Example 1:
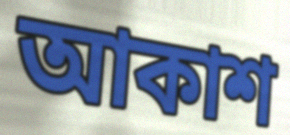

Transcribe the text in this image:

আকাশ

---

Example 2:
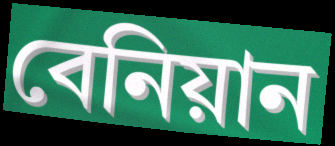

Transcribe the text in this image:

বেনিয়ান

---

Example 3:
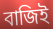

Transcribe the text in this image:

বাজিই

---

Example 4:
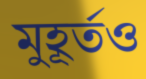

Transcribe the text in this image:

মুহূর্তও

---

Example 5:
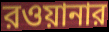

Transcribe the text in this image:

রওয়ানার